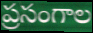
ప్రసంగాల